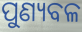
ପୁଣ୍ୟବଳ